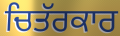
ਚਿਤੱਰਕਾਰ